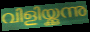
വിളിയ്ക്കുന്നു